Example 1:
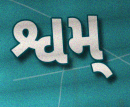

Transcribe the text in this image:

શ્વમ્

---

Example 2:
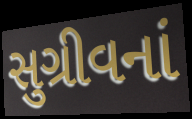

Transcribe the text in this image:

સુગ્રીવનાં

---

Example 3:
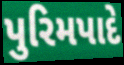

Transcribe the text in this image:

પુરિમપાદે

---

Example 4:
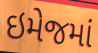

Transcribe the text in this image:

ઇમેજમાં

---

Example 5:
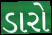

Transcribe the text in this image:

ડારો